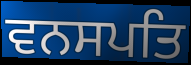
ਵਨਸਪਤਿ